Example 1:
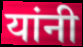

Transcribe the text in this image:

यांनी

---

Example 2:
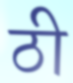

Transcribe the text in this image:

ठी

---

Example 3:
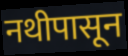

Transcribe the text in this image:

नथीपासून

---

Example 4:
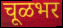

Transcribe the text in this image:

चूळभर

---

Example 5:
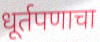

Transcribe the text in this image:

धूर्तपणाचा